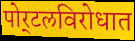
पोर्टलविरोधात